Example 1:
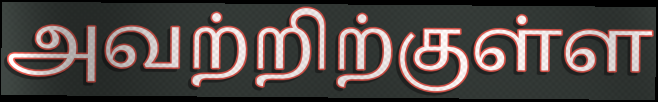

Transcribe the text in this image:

அவற்றிற்குள்ள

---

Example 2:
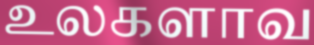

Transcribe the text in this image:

உலகளாவ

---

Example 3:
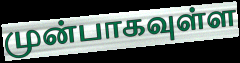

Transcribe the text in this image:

முன்பாகவுள்ள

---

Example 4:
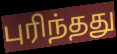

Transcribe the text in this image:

புரிந்தது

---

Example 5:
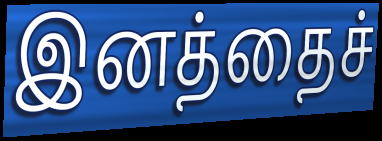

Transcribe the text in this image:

இனத்தைச்